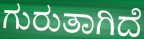
ಗುರುತಾಗಿದೆ